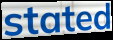
stated